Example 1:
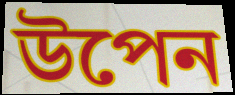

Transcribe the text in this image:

উপেন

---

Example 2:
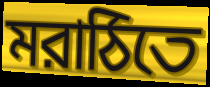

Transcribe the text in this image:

মরাঠিতে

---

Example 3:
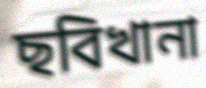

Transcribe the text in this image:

ছবিখানা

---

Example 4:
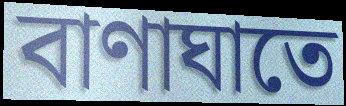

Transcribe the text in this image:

বাণাঘাতে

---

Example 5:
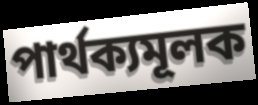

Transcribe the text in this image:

পার্থক্যমূলক